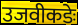
उजवीकडेः